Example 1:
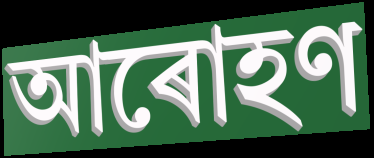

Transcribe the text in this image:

আৰোহণ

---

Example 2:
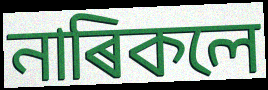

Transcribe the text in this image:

নাৰিকলে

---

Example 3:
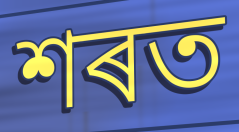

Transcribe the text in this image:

শৰত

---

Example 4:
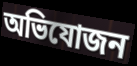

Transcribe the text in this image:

অভিযোজন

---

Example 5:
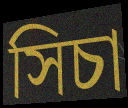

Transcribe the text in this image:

সিচা